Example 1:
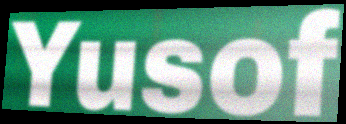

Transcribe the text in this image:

Yusof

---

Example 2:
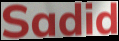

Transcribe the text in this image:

Sadid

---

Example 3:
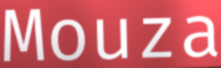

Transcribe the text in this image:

Mouza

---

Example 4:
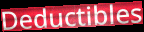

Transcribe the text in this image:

Deductibles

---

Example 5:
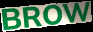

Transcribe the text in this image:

BROW